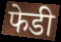
फेडी